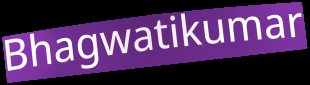
Bhagwatikumar